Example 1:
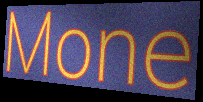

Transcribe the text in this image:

Mone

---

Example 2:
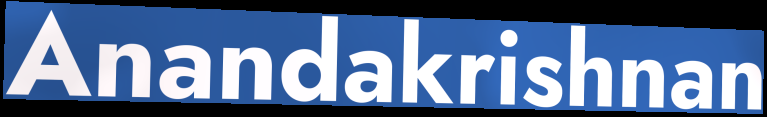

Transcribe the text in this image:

Anandakrishnan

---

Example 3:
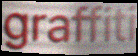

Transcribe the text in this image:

graffiti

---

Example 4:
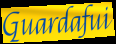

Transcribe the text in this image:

Guardafui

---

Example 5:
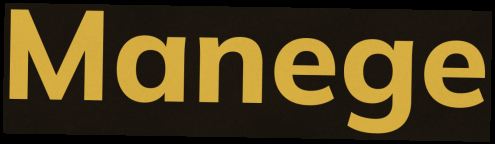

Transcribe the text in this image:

Manege